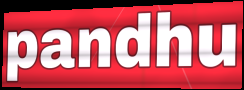
pandhu